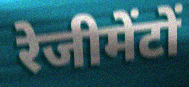
रेजीमेंटों